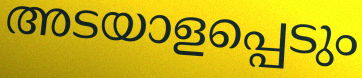
അടയാളപ്പെടും